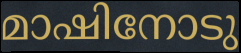
മാഷിനോടു